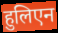
हुलिएन